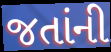
જતાંની